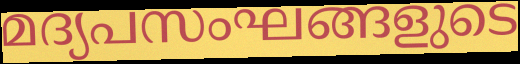
മദ്യപസംഘങ്ങളുടെ